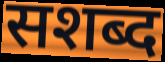
सशब्द